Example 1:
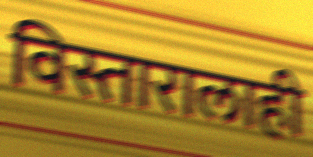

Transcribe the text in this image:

विस्तारालाही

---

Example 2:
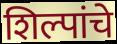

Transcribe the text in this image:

शिल्पांचे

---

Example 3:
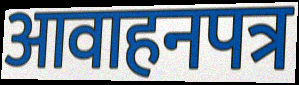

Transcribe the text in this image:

आवाहनपत्र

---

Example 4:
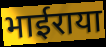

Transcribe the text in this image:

भाईराया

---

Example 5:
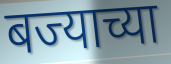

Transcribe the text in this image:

बज्याच्या